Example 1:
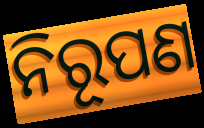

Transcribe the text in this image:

ନିରୂପଣ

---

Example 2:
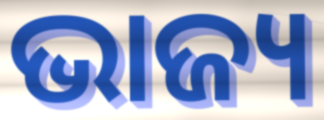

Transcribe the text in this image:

ଭାଜ୍ୟ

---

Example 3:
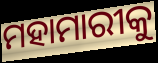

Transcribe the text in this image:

ମହାମାରୀକୁ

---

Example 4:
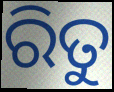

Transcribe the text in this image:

ରିତୁ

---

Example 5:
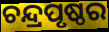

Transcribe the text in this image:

ଚନ୍ଦ୍ରପୃଷ୍ଠର